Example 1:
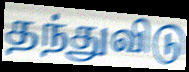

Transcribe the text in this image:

தந்துவிடு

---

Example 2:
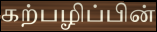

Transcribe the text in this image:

கற்பழிப்பின்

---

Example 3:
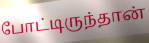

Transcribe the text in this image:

போட்டிருந்தான்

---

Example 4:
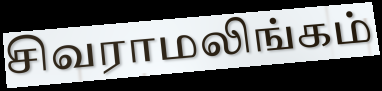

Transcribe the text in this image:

சிவராமலிங்கம்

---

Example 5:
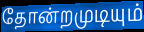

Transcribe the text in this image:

தோன்றமுடியும்